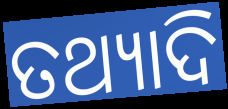
ତଥ୍ୟାଦି